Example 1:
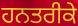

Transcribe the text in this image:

ਹਨਤਰੀਕੇ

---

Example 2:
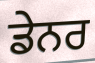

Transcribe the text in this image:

ਡੇਨਰ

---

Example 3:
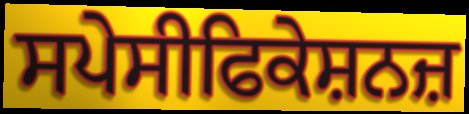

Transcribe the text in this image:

ਸਪੇਸੀਫਿਕੇਸ਼ਨਜ਼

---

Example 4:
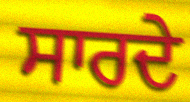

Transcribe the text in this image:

ਸਾਰਦੇ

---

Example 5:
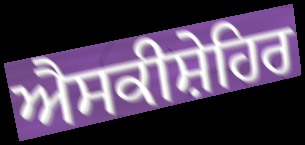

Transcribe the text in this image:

ਐਸਕੀਸ਼ੇਹਿਰ